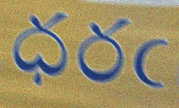
ధరఁ